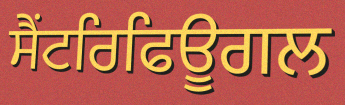
ਸੈਂਟਰਿਫਿਊਗਲ